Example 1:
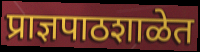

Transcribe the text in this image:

प्राज्ञपाठशाळेत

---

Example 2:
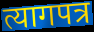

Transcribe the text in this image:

त्यागपत्र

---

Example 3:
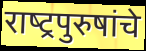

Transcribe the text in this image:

राष्ट्रपुरुषांचे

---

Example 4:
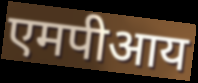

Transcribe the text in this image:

एमपीआय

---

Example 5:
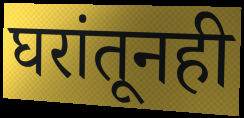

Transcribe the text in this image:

घरांतूनही